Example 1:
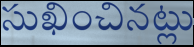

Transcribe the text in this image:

సుఖించినట్లు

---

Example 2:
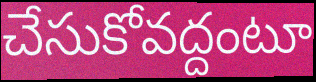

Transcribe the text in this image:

చేసుకోవద్దంటూ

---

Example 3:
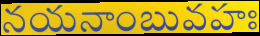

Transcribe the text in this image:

నయనాంబువహః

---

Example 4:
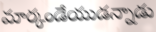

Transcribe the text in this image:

మార్కండేయుడన్నాడు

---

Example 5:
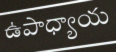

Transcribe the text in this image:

ఉపాధ్యాయ